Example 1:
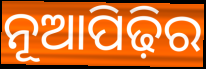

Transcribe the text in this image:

ନୂଆପିଢ଼ିର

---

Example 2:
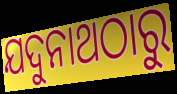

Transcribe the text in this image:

ଯଦୁନାଥଠାରୁ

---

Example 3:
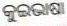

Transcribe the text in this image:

କୁଇଭାଷା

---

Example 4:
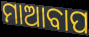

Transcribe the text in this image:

ମାଆବାପ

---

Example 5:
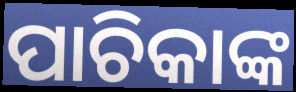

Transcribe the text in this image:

ପାଚିକାଙ୍କ